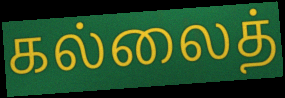
கல்லைத்